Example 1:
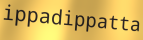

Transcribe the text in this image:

ippadippatta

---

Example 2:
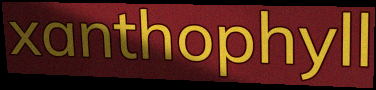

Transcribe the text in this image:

xanthophyll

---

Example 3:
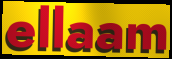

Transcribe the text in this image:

ellaam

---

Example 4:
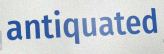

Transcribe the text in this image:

antiquated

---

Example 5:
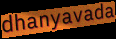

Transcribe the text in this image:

dhanyavada